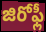
జిరోఫ్లీ